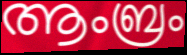
ആംബ്രം